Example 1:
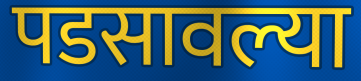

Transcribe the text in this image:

पडसावल्या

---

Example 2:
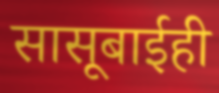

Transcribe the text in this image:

सासूबाईही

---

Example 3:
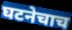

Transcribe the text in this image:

घटनेचाच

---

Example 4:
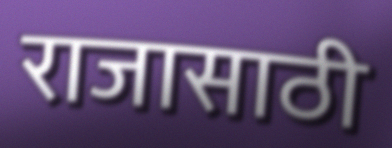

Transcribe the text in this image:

राजासाठी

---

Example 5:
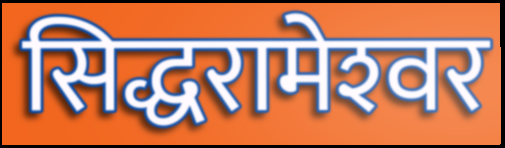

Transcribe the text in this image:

सिद्धरामेश्‍वर